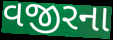
વજીરના